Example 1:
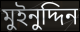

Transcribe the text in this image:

মুইনুদ্দিন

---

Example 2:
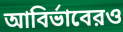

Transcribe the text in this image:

আবির্ভাবেরও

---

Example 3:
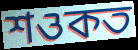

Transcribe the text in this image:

শওকত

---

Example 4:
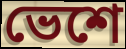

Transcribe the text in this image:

ভেশে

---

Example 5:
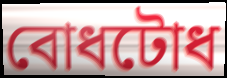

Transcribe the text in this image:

বোধটোধ